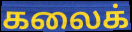
கலைக்